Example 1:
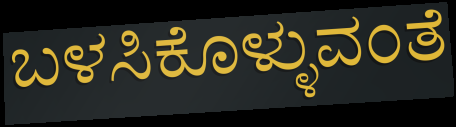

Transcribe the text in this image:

ಬಳಸಿಕೊಳ್ಳುವಂತೆ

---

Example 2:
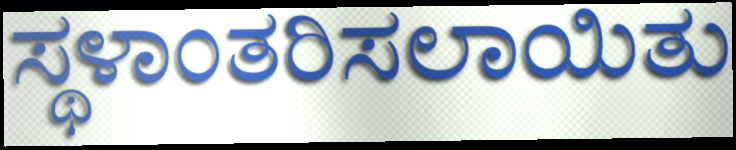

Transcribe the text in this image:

ಸ್ಥಳಾಂತರಿಸಲಾಯಿತು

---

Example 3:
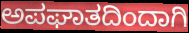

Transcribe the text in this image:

ಅಪಘಾತದಿಂದಾಗಿ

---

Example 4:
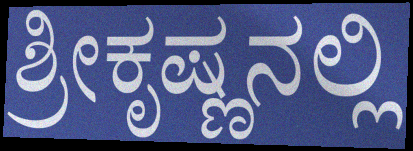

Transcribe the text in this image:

ಶ್ರೀಕೃಷ್ಣನಲ್ಲಿ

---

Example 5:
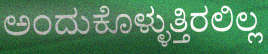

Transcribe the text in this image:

ಅಂದುಕೊಳ್ಳುತ್ತಿರಲಿಲ್ಲ